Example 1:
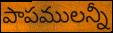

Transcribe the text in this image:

పాపములన్నీ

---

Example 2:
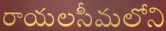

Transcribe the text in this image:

రాయలసీమలోని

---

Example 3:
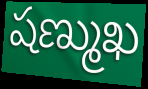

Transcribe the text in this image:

షణ్ముఖ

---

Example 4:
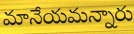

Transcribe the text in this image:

మానేయమన్నారు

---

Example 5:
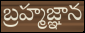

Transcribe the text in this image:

బ్రహ్మజ్ఞాన